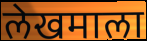
लेखमाला